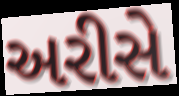
અરીસે